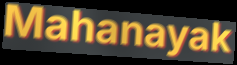
Mahanayak